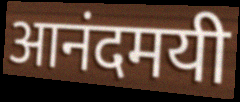
आनंदमयी